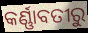
କର୍ଣ୍ଣାବତୀରୁ